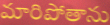
మారిపోతాను